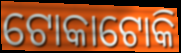
ଟୋକାଟୋକି